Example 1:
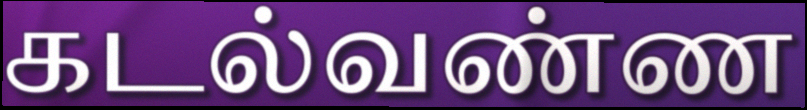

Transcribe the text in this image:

கடல்வண்ண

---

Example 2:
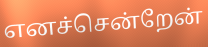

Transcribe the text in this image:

எனச்சென்றேன்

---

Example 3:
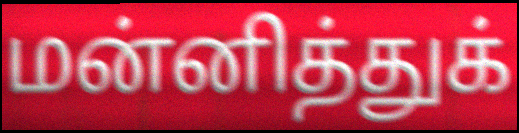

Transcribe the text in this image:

மன்னித்துக்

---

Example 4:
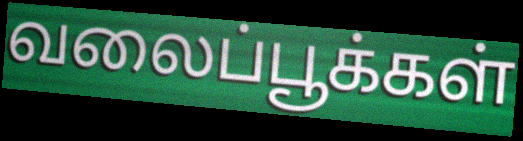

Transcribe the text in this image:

வலைப்பூக்கள்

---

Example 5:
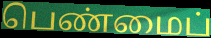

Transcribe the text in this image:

பெண்மைப்